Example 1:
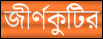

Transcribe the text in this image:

জীর্ণকুটির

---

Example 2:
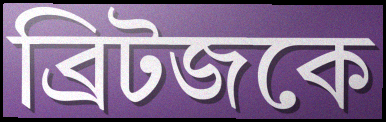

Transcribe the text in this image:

ব্রিটজকে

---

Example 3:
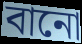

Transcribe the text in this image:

বানো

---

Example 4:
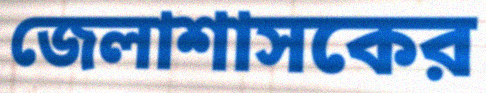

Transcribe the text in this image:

জেলাশাসকের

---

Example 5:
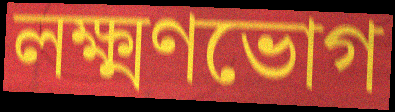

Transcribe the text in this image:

লক্ষ্মণভোগ